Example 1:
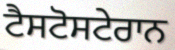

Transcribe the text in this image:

ਟੈਸਟੋਸਟੇਰਾਨ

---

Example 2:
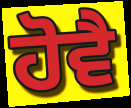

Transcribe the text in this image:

ਹੋਵੈ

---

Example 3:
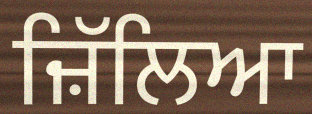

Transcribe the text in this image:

ਜ਼ਿੱਲਿਆ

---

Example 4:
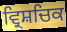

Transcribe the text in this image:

ਵ੍ਰਿਸ਼ਚਿਕ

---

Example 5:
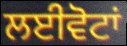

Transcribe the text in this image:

ਲਈਵੋਟਾਂ